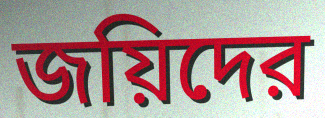
জয়িদের